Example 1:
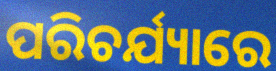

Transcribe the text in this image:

ପରିଚର୍ଯ୍ୟାରେ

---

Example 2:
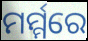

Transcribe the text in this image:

ମର୍ମ୍ମରେ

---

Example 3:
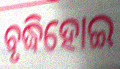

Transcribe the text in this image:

ବୃଦ୍ଧିହୋଇ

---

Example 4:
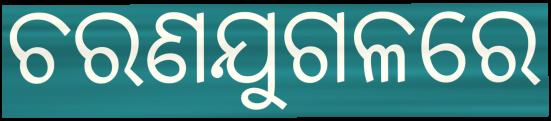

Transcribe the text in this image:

ଚରଣଯୁଗଳରେ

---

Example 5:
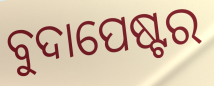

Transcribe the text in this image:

ବୁଦାପେଷ୍ଟର